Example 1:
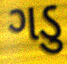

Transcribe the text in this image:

ગડુ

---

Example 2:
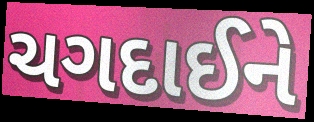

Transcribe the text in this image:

ચગદાઈને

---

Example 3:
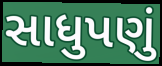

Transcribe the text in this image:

સાધુપણું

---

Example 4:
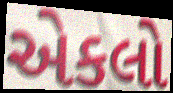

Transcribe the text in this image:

એકલો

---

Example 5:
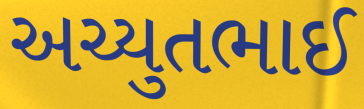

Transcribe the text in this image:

અચ્યુતભાઈ